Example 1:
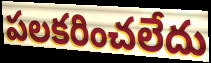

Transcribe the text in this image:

పలకరించలేదు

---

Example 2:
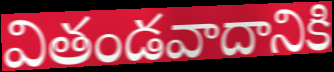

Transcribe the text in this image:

వితండవాదానికి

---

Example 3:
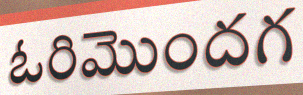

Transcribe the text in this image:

ఓరిమొందగ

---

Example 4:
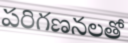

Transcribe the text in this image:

పరిగణనలతో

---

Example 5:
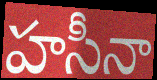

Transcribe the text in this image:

హసీనా